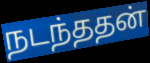
நடந்ததன்